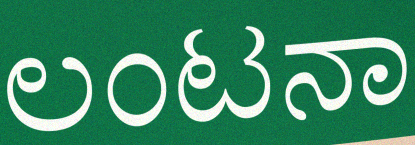
ಲಂಟನಾ